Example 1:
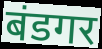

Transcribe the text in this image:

बंडगर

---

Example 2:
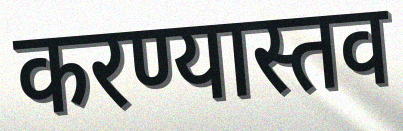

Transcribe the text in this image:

करण्यास्तव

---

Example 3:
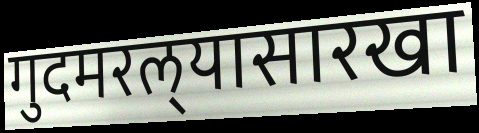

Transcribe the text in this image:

गुदमरल्यासारखा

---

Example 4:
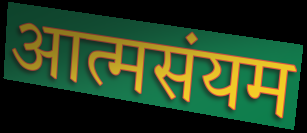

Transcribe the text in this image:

आत्मसंयम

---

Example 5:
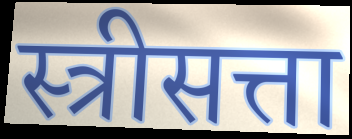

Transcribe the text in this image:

स्त्रीसत्ता